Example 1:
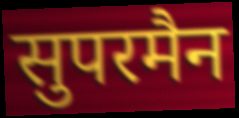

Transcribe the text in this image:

सुपरमैन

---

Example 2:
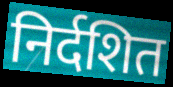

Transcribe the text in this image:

निर्दशित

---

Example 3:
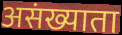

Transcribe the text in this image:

असंख्याता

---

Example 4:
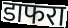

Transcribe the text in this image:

डाफरा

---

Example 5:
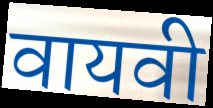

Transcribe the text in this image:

वायवी